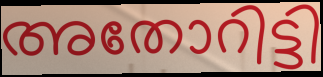
അതോറിട്ടി